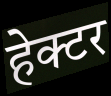
हेक्‍टर